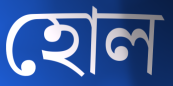
হোল